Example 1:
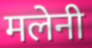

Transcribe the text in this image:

मलेनी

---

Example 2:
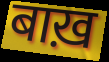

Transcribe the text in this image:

बाख़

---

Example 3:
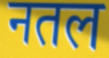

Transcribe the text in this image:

नतल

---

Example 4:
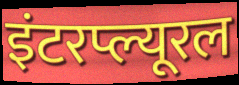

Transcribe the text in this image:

इंटरप्ल्यूरल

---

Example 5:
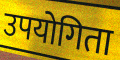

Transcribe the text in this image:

उपयोगिता